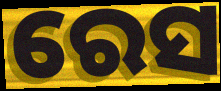
ରେସ